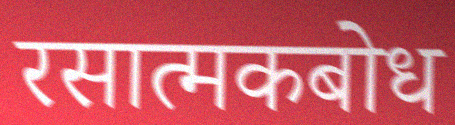
रसात्मकबोध